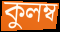
কুলম্ব